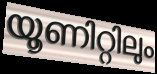
യൂണിറ്റിലും